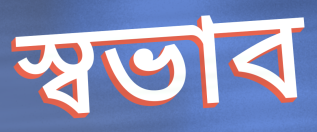
স্বভাব